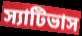
স্যাটিভাস